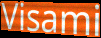
Visami